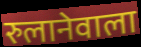
रुलानेवाला